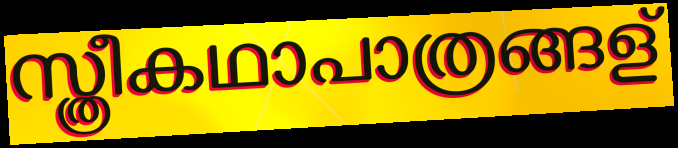
സ്ത്രീകഥാപാത്രങ്ങള്